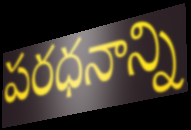
పరధనాన్ని